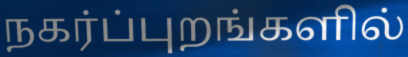
நகர்ப்புறங்களில்